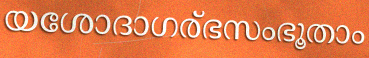
യശോദാഗര്ഭസംഭൂതാം